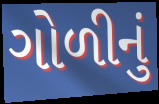
ગોળીનું